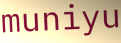
muniyu